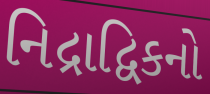
નિદ્રાદ્વિકનો